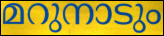
മറുനാടും